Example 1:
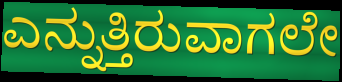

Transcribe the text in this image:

ಎನ್ನುತ್ತಿರುವಾಗಲೇ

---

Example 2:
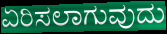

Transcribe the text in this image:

ಏರಿಸಲಾಗುವುದು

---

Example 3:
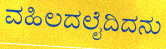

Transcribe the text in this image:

ವಹಿಲದಲೈದಿದನು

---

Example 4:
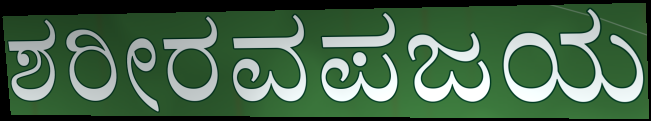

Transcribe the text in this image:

ಶರೀರವಪಜಯ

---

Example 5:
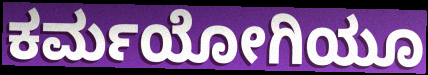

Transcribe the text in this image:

ಕರ್ಮಯೋಗಿಯೂ